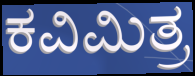
ಕವಿಮಿತ್ರ